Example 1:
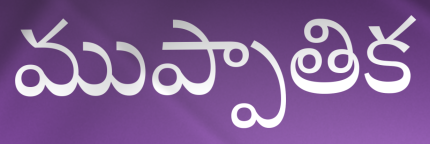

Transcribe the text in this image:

ముప్పాతిక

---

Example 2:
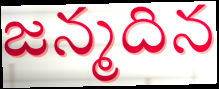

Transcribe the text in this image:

జన్మదిన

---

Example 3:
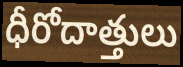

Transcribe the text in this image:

ధీరోదాత్తులు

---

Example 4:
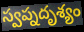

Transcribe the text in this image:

స్వప్నదృశ్యం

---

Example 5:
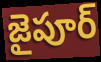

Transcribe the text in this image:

జైపూర్